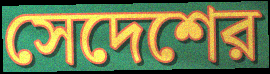
সেদেশের